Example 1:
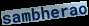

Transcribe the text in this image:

sambherao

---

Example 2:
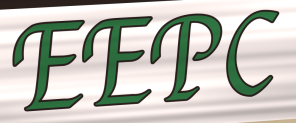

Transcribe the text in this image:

EEPC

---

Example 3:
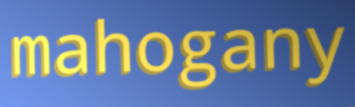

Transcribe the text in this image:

mahogany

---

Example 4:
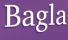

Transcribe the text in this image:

Bagla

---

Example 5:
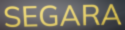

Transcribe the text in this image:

SEGARA